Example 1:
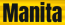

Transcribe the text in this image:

Manita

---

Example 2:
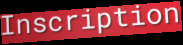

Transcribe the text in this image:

Inscription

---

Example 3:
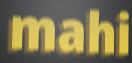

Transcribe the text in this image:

mahi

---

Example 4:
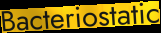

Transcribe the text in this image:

Bacteriostatic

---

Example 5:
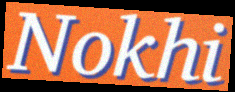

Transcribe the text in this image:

Nokhi